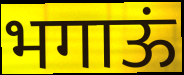
भगाऊं